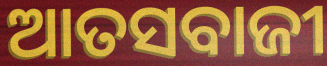
ଆତସବାଜୀ